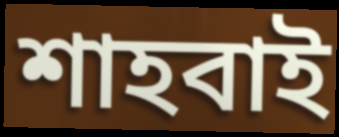
শাহবাই